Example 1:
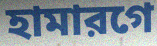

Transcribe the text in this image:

হামারগে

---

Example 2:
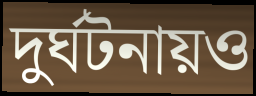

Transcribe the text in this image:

দুর্ঘটনায়ও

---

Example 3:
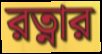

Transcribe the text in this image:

রত্নার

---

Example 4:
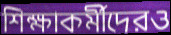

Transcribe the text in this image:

শিক্ষাকর্মীদেরও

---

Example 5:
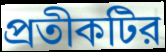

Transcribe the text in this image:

প্রতীকটির